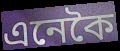
এনেকৈ